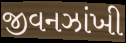
જીવનઝાંખી